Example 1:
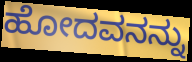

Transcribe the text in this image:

ಹೋದವನನ್ನು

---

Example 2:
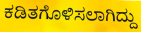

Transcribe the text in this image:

ಕಡಿತಗೊಳಿಸಲಾಗಿದ್ದು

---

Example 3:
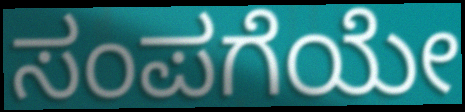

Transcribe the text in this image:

ಸಂಪಗೆಯೇ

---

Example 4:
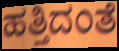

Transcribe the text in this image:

ಹತ್ತಿದಂತೆ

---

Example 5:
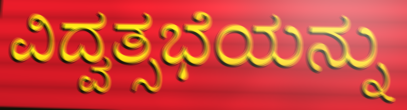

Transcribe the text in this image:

ವಿದ್ವತ್ಸಭೆಯನ್ನು